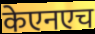
केएनएच